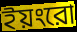
ইয়ংরো